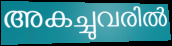
അകച്ചുവരിൽ